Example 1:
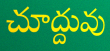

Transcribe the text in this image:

చూద్దువు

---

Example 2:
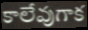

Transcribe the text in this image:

కాలేవుగాక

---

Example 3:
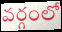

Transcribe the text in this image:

వర్గంలో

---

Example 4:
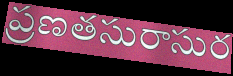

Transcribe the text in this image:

ప్రణతసురాసుర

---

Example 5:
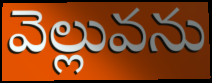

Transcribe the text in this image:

వెల్లువను